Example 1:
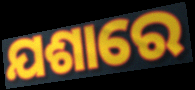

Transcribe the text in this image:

ଯଶାରେ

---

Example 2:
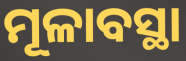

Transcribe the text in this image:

ମୂଳାବସ୍ଥା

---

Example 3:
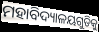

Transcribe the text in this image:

ମହାବିଦ୍ୟାଳୟଗୁଡିକୁ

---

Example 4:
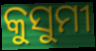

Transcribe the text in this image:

କୁସୁମୀ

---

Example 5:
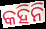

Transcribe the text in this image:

କହିନି